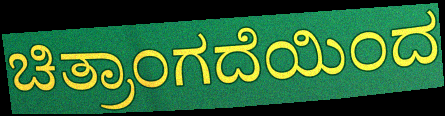
ಚಿತ್ರಾಂಗದೆಯಿಂದ